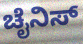
ಚೈನಿಸ್